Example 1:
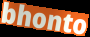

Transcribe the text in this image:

bhonto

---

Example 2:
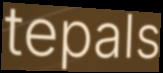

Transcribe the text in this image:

tepals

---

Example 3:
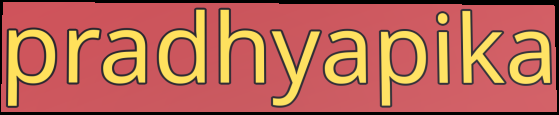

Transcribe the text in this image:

pradhyapika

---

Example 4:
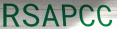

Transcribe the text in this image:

RSAPCC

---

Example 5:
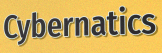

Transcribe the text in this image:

Cybernatics